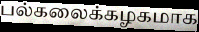
பல்கலைக்கழகமாக